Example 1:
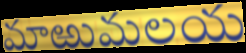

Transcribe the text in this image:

మాఱుమలయ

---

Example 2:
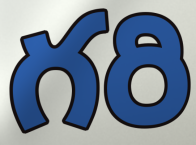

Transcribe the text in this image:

గరి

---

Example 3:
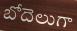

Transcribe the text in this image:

బోదెలుగా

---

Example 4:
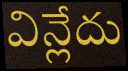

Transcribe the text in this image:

విన్లేదు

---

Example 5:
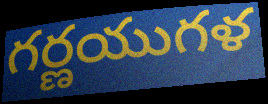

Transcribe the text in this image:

గర్ణయుగళ